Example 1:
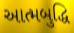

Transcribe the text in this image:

આત્મબુદ્ધિ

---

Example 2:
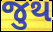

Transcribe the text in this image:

જુથ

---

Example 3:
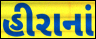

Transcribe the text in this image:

હીરાનાં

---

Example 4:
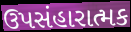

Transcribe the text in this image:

ઉપસંહારાત્મક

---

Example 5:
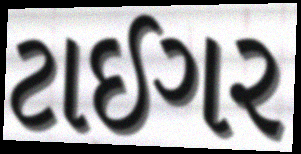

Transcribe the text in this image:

ટાઈગર